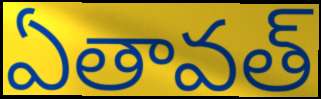
ఏతావత్